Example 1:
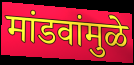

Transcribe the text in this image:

मांडवांमुळे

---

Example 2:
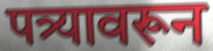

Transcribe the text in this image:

पत्र्यावरून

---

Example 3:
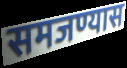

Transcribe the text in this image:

समजण्यास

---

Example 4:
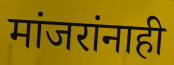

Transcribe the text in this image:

मांजरांनाही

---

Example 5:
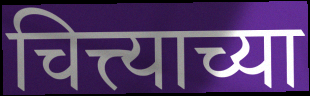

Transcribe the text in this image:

चित्त्याच्या